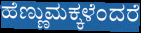
ಹೆಣ್ಣುಮಕ್ಕಳೆಂದರೆ